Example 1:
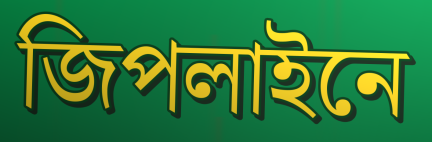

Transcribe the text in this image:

জিপলাইনে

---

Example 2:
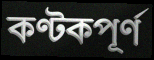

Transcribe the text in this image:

কণ্টকপূর্ণ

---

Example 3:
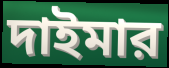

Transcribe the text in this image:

দাইমার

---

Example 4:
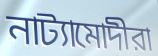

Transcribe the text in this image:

নাট্যামোদীরা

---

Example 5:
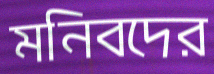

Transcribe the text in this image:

মনিবদের